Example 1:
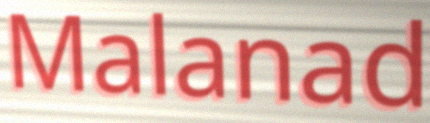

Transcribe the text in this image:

Malanad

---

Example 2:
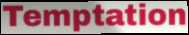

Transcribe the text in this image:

Temptation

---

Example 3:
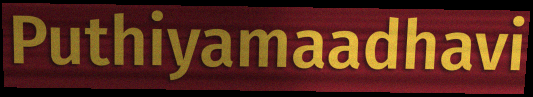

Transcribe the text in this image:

Puthiyamaadhavi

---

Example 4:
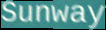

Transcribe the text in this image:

Sunway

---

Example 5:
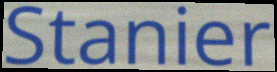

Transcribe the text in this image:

Stanier